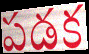
పడక